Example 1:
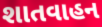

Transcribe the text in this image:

શાતવાહન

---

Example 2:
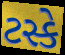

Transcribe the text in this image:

ટસ્કે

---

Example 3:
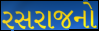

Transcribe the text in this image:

રસરાજનો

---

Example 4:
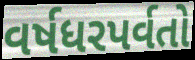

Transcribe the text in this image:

વર્ષધરપર્વતો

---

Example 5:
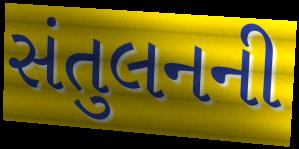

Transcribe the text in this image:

સંતુલનની